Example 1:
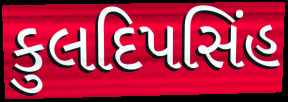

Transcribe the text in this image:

કુલદિપસિંહ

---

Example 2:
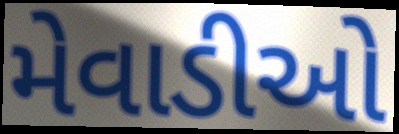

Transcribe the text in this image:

મેવાડીઓ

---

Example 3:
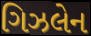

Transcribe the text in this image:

ગિઝલેન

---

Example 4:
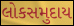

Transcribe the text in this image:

લોકસમુદાય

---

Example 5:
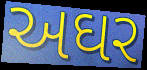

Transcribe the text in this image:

અઘર